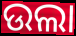
ଉଲା